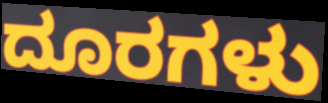
ದೂರಗಳು